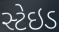
સ્ટેઇડ